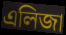
এলিজা